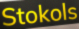
Stokols